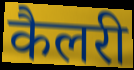
कैलरी